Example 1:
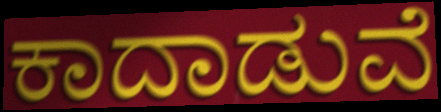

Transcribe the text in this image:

ಕಾದಾಡುವೆ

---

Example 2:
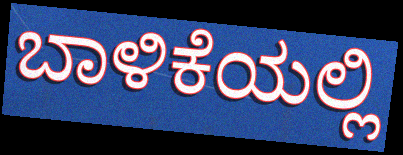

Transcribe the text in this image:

ಬಾಳಿಕೆಯಲ್ಲಿ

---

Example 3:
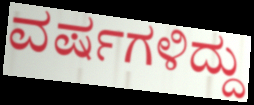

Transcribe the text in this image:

ವರ್ಷಗಳಿದ್ದು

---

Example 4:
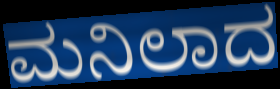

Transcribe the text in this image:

ಮನಿಲಾದ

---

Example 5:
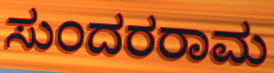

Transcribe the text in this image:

ಸುಂದರರಾಮ